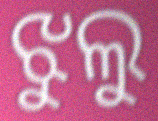
ଝୁଲୁ